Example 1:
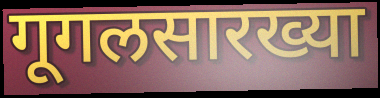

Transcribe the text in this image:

गूगलसारख्या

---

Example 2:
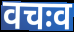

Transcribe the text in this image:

वचःव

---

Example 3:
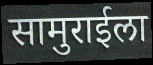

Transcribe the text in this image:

सामुराईला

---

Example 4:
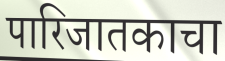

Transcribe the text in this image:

पारिजातकाचा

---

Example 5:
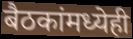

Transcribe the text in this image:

बैठकांमध्येही